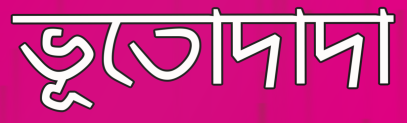
ভূতোদাদা